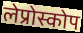
लेप्रोस्कोप